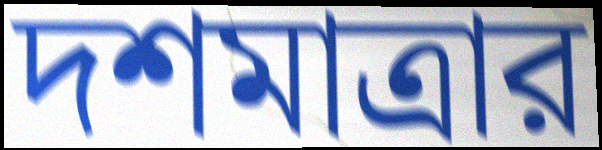
দশমাত্রার